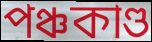
পঞ্চকাণ্ড